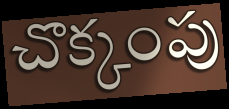
చొక్కంపు